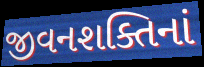
જીવનશક્તિનાં